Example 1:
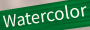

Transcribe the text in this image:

Watercolor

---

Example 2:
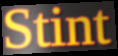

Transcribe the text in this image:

Stint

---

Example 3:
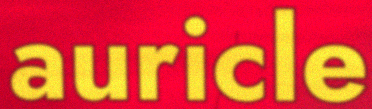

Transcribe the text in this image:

auricle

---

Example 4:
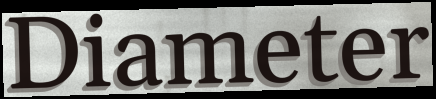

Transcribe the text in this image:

Diameter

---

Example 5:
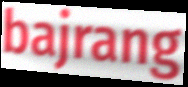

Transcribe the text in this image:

bajrang